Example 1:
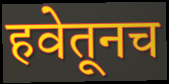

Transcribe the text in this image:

हवेतूनच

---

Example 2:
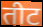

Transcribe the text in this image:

तीट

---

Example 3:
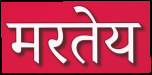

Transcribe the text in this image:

मरतेय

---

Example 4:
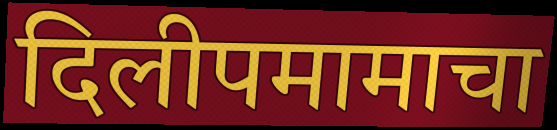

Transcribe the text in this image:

दिलीपमामाचा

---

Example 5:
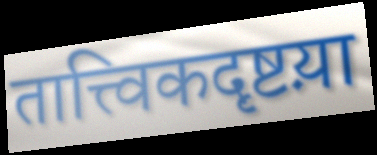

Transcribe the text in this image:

तात्त्विकदृष्टय़ा